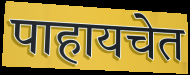
पाहायचेत